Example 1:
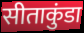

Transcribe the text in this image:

सीताकुंडा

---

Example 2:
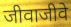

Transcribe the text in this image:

जीवाजीवे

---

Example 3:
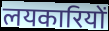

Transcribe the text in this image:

लयकारियों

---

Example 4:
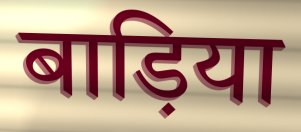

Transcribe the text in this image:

बाड़िया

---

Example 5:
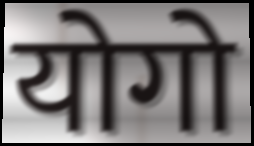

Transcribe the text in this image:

योगो